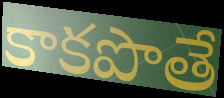
కాకపొతే